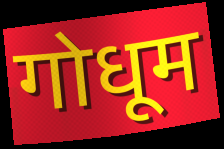
गोधूम